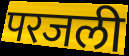
परजली